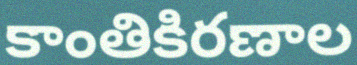
కాంతికిరణాల